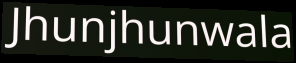
Jhunjhunwala